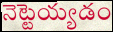
నెట్టెయ్యడం